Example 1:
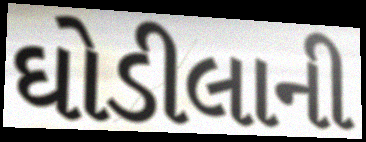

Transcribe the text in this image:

ઘોડીલાની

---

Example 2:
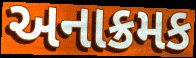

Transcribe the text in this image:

અનાક્રમક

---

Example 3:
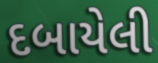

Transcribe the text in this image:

દબાયેલી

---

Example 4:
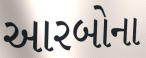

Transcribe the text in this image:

આરબોના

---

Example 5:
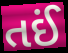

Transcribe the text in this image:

તઈં